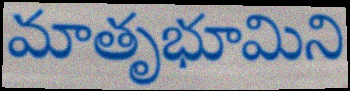
మాతృభూమిని